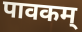
पावकम्